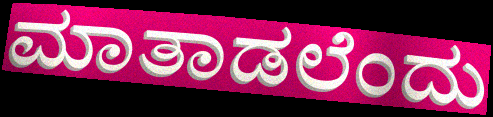
ಮಾತಾಡಲೆಂದು